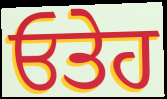
ਓਤੇਹ